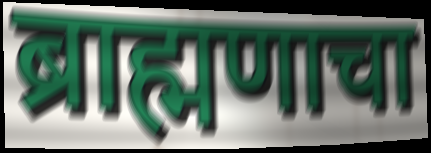
ब्राह्मणाचा